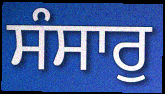
ਸੰਸਾਰੁ